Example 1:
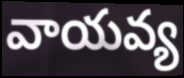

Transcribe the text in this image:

వాయవ్య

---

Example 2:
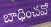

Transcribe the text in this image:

బాధించవో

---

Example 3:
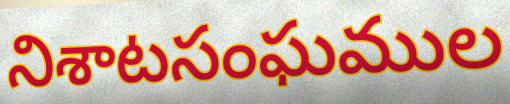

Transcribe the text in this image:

నిశాటసంఘముల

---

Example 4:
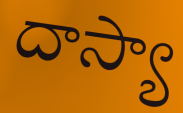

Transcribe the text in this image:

దాస్యా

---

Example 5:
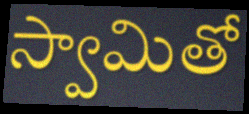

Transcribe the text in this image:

స్వామితో